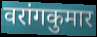
वरांगकुमार